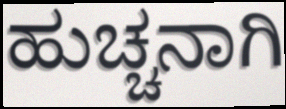
ಹುಚ್ಚನಾಗಿ